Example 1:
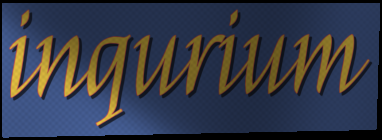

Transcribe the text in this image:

inqurium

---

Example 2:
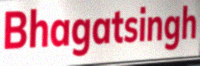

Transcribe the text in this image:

Bhagatsingh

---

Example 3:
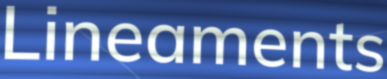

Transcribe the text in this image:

Lineaments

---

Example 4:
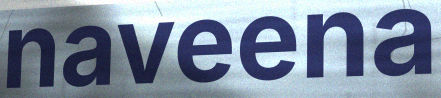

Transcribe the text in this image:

naveena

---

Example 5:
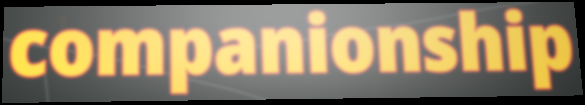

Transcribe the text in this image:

companionship